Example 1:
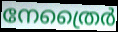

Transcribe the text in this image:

നേത്രൈർ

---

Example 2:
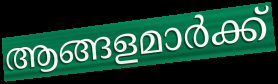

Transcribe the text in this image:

ആങ്ങളമാർക്ക്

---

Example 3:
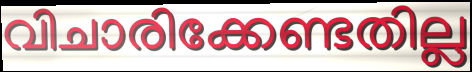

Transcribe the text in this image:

വിചാരിക്കേണ്ടതില്ല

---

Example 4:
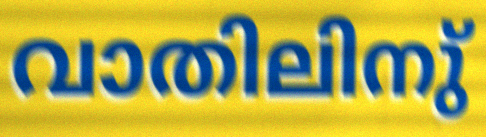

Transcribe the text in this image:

വാതിലിനു്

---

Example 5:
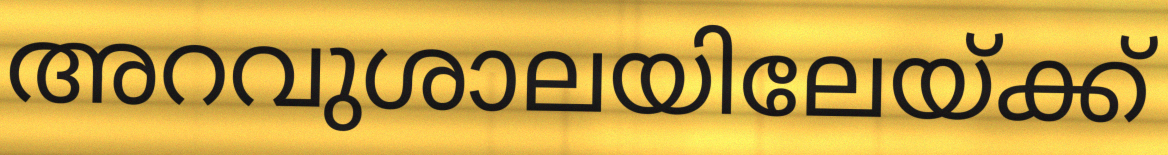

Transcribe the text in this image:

അറവുശാലയിലേയ്ക്ക്